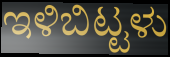
ಇಳಿಬಿಟ್ಟಳು